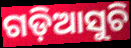
ଗଡ଼ିଆସୁଚି